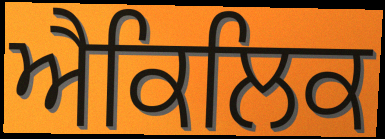
ਐਕਿਲਿਕ